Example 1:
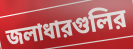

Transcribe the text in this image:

জলাধারগুলির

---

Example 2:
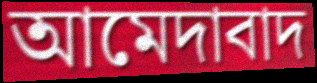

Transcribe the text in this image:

আমেদাবাদ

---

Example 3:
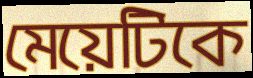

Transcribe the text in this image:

মেয়েটিকে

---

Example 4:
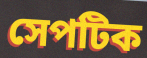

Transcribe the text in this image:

সেপটিক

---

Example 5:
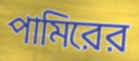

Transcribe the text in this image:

পামিরের